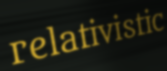
relativistic